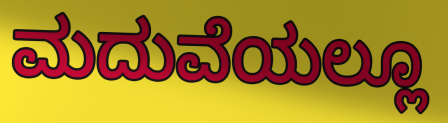
ಮದುವೆಯಲ್ಲೂ